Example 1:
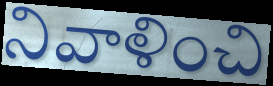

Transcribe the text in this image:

నివాళించి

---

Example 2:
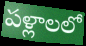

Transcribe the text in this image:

పళ్లాలలో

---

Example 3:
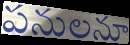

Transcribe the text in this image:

పనులనూ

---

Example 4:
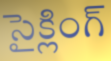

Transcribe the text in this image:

సైక్లింగ్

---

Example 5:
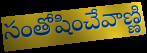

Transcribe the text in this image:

సంతోషించేవాణ్ణి